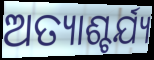
ଅତ୍ୟାଶ୍ଚର୍ଯ୍ୟ